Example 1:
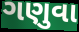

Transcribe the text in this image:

ગણુવા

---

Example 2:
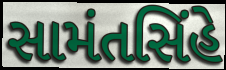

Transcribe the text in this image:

સામંતસિંહે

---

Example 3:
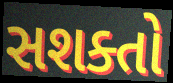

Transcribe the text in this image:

સશક્તો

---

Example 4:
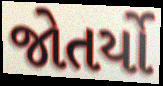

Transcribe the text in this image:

જોતર્યો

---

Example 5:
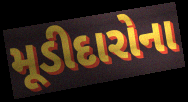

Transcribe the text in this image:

મૂડીદારોના